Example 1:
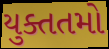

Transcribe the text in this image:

યુક્તતમો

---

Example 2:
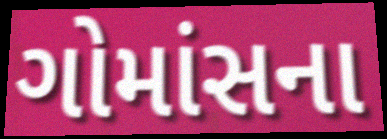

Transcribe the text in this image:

ગોમાંસના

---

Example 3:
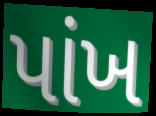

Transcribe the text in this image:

પાંખ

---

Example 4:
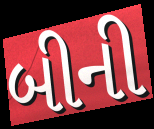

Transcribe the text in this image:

બીની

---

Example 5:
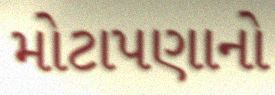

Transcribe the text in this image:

મોટાપણાનો